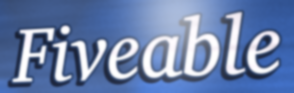
Fiveable